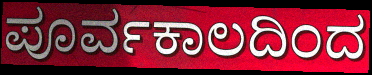
ಪೂರ್ವಕಾಲದಿಂದ